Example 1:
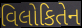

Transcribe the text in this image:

વિલોકિતેન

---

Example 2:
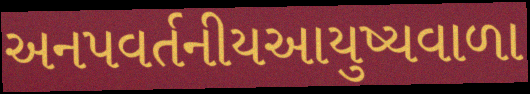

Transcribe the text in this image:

અનપવર્તનીયઆયુષ્યવાળા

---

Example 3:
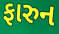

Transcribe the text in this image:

ફારુન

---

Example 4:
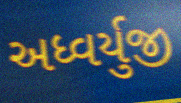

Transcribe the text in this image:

અધ્વર્યુજી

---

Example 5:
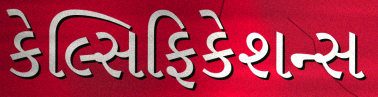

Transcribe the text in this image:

કેલ્સિફિકેશન્સ